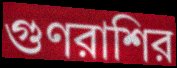
গুণরাশির